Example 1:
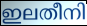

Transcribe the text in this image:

ഇലതീനി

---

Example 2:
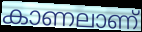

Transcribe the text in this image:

കാണലാണ്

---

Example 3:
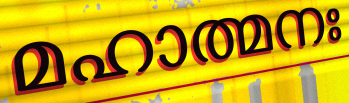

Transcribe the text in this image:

മഹാത്മനഃ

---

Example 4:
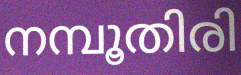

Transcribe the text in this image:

നമ്പൂതിരി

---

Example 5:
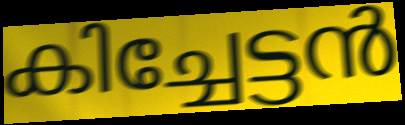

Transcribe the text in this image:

കിച്ചേട്ടൻ